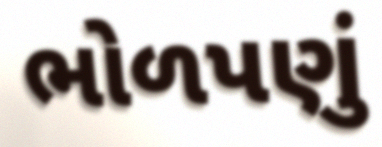
ભોળપણું